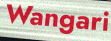
Wangari